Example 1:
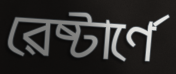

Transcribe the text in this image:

ৱেষ্টাৰ্ণে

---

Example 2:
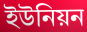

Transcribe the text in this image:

ইউনিয়ন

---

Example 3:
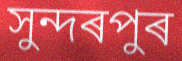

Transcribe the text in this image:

সুন্দৰপুৰ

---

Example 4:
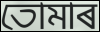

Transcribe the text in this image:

তোমাৰ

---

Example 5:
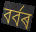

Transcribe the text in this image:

বৰ্বৰ